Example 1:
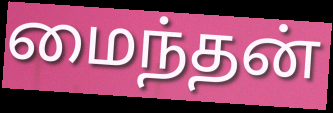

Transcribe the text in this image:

மைந்தன்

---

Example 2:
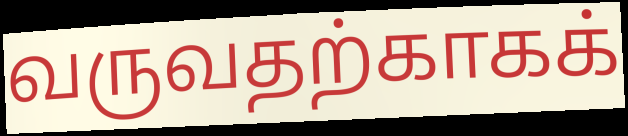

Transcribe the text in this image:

வருவதற்காகக்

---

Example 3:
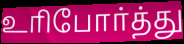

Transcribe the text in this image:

உரிபோர்த்து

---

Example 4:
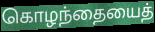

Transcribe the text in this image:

கொழந்தையைத்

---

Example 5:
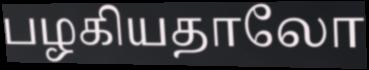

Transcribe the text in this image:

பழகியதாலோ